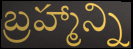
బ్రహ్మాన్ని